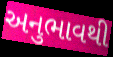
અનુભાવથી